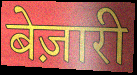
बेज़ारी